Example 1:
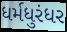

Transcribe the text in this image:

ધર્મધુરંધર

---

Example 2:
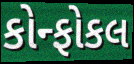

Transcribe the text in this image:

કોન્ફોકલ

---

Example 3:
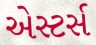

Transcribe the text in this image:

એસ્ટર્સ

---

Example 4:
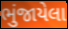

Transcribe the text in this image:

ભુંજાયેલા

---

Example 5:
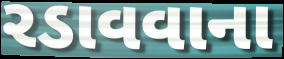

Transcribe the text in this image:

રડાવવાના